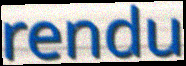
rendu